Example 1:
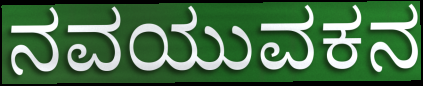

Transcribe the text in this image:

ನವಯುವಕನ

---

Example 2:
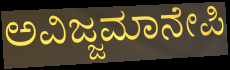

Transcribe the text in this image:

ಅವಿಜ್ಜಮಾನೇಪಿ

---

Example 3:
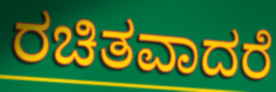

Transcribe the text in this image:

ರಚಿತವಾದರೆ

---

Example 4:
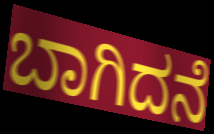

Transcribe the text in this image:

ಬಾಗಿದನೆ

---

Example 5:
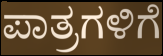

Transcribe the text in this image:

ಪಾತ್ರಗಳಿಗೆ